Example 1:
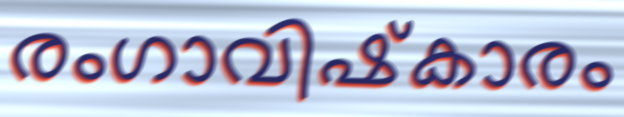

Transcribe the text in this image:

രംഗാവിഷ്‌കാരം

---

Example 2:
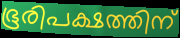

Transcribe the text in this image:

ഭൂരിപക്ഷത്തിന്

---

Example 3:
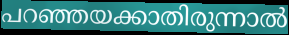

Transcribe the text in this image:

പറഞ്ഞയക്കാതിരുന്നാൽ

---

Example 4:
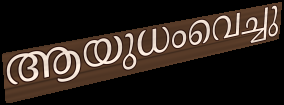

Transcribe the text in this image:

ആയുധംവെച്ചു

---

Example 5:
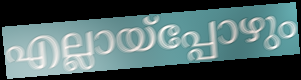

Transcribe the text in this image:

എല്ലായ്പ്പോഴും